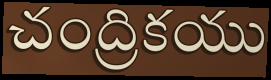
చంద్రికయు